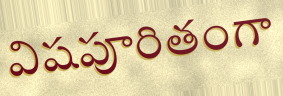
విషపూరితంగా